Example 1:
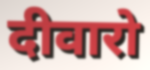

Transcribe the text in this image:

दीवारो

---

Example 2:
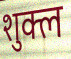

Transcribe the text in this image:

शुक्ल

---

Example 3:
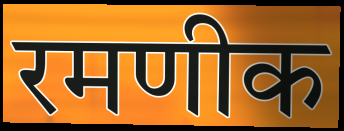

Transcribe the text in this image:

रमणीक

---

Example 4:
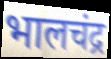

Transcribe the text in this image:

भालचंद्र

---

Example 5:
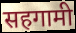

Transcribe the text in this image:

सहगामी